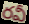
రవీ